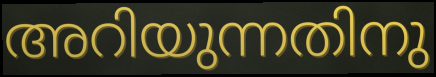
അറിയുന്നതിനു